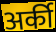
अर्की